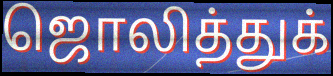
ஜொலித்துக்